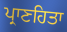
ਪ੍ਰਾਣਹਿਤਾ